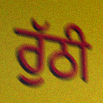
ਰੁੱਠੀ